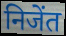
निजेंत